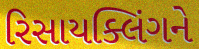
રિસાયક્લિંગને